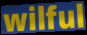
wilful